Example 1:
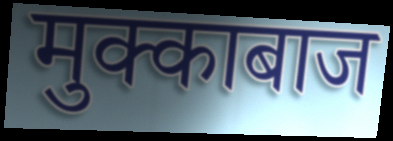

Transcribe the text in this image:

मुक्काबाज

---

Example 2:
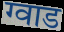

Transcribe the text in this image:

ग्वाड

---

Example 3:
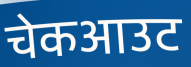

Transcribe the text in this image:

चेकआउट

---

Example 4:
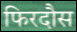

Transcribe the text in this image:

फिरदौस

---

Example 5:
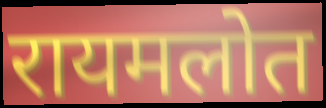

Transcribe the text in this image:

रायमलोत